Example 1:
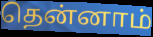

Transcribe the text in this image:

தென்னாம்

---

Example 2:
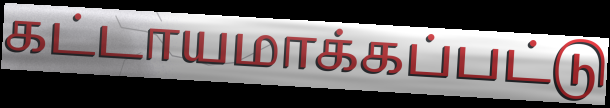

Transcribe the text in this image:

கட்டாயமாக்கப்பட்டு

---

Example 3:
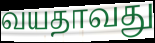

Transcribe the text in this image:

வயதாவது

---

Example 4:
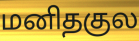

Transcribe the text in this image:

மனிதகுல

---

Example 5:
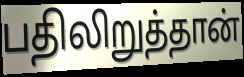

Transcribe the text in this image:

பதிலிறுத்தான்